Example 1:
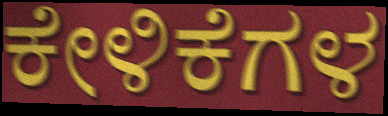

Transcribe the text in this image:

ಕೇಳಿಕೆಗಳ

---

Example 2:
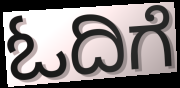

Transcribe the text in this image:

ಓದಿಗೆ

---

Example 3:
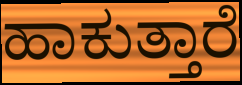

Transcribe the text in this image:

ಹಾಕುತ್ತಾರೆ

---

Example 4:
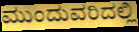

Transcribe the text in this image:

ಮುಂದುವರಿದಲ್ಲಿ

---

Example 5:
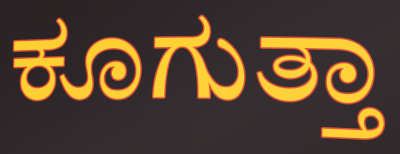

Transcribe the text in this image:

ಕೂಗುತ್ತಾ